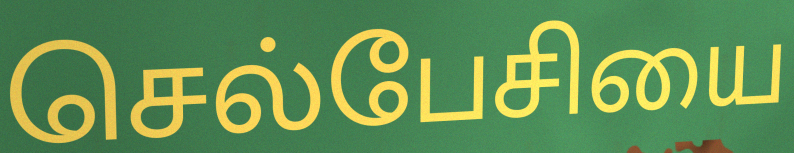
செல்பேசியை